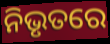
ନିଭୃତରେ